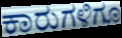
ಕಾರುಗಳಿಗೂ